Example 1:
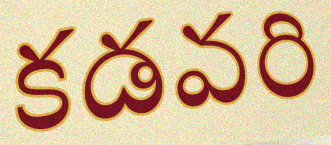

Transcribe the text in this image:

కడవరి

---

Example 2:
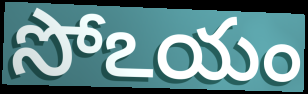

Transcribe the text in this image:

సోఽయం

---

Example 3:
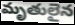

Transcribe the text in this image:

మృతులైన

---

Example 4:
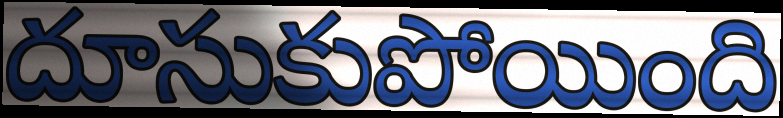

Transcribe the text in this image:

దూసుకుపోయింది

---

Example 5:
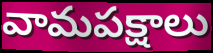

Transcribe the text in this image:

వామపక్షాలు